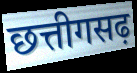
छत्तीगसढ़